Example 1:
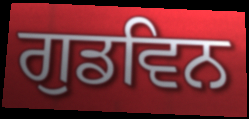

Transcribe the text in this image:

ਗੁਡਵਿਨ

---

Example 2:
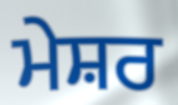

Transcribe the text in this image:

ਮੇਸ਼ਰ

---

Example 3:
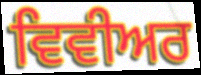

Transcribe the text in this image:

ਵਿਵੀਅਰ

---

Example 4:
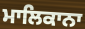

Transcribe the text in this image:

ਮਾਲਿਕਾਨਾ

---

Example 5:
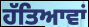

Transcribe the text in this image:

ਹੱਤਿਆਵਾਂ